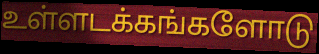
உள்ளடக்கங்களோடு